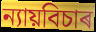
ন্যায়বিচাৰ